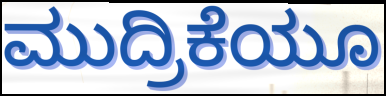
ಮುದ್ರಿಕೆಯೂ